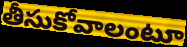
తీసుకోవాలంటూ